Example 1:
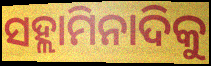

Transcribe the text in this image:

ସହ୍ଲାମିନାଦିକୁ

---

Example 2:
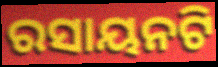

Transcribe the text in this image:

ରସାୟନଟି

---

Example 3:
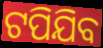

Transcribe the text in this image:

ଟପିଯିବ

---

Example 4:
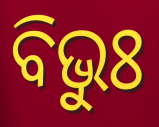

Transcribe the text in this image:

ବିଭୁଃ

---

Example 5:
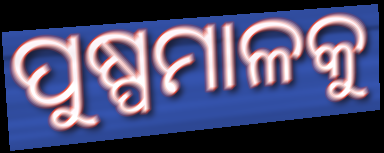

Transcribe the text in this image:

ପୁଷ୍ପମାଳକୁ